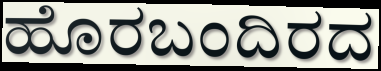
ಹೊರಬಂದಿರದ